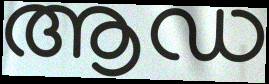
ആഡ